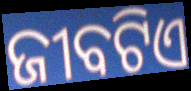
ଜୀବଟିଏ